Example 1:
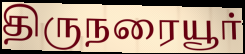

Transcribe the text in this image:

திருநரையூர்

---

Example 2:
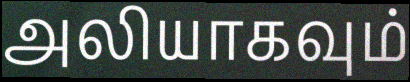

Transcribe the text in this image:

அலியாகவும்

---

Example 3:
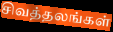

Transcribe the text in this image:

சிவத்தலங்கள்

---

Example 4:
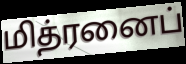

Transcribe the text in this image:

மித்ரனைப்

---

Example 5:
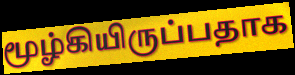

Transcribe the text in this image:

மூழ்கியிருப்பதாக